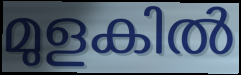
മുളകിൽ